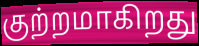
குற்றமாகிறது